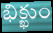
భిక్ఖుం